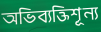
অভিব্যক্তিশূন্য